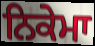
ਨਿਕੇਮਾ